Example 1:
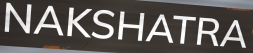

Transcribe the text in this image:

NAKSHATRA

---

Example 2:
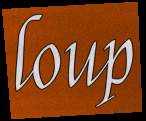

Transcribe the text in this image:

loup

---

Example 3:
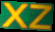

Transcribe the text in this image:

xz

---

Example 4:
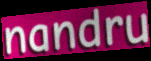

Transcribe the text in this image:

nandru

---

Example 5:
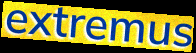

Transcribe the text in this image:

extremus